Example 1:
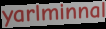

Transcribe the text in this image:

yarlminnal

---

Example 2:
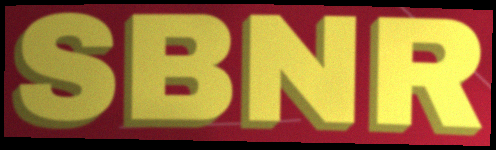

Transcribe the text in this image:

SBNR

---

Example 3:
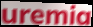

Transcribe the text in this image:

uremia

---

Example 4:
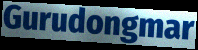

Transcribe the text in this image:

Gurudongmar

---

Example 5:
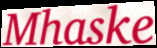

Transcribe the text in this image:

Mhaske